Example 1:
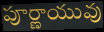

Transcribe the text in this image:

పూర్ణాయువు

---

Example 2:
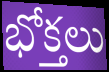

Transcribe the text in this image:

భోక్తలు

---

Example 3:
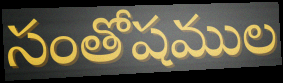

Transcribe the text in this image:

సంతోషముల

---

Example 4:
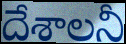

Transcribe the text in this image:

దేశాలనీ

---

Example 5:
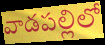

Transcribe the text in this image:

వాడపల్లిలో